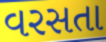
વરસતા